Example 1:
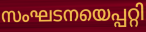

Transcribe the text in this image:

സംഘടനയെപ്പറ്റി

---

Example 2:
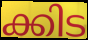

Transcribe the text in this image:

ക്കിട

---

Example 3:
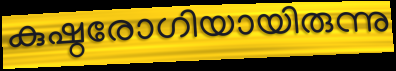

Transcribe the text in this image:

കുഷ്ഠരോഗിയായിരുന്നു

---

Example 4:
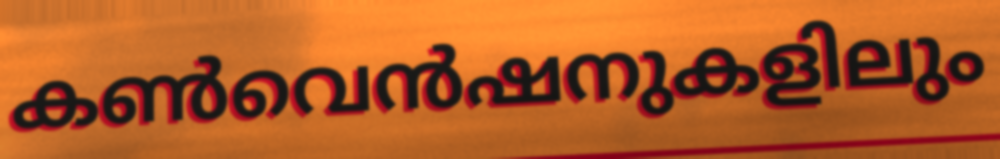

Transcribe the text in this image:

കൺവെൻഷനുകളിലും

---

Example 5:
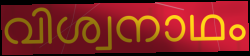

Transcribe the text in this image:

വിശ്വനാഥം